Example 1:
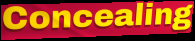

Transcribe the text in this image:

Concealing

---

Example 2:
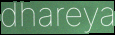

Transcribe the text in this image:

dhareya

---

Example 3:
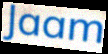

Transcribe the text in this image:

Jaam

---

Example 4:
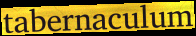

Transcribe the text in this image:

tabernaculum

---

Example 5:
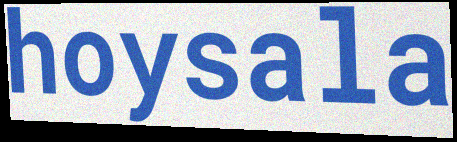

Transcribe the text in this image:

hoysala